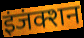
इंजंक्शन